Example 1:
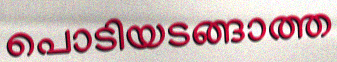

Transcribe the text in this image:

പൊടിയടങ്ങാത്ത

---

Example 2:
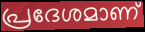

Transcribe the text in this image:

പ്രദേശമാണ്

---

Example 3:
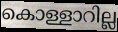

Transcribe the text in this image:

കൊള്ളാറില്ല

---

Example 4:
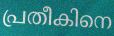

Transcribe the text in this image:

പ്രതീകിനെ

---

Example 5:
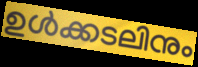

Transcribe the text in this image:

ഉൾക്കടലിനും